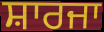
ਸ਼ਾਰਜਾ